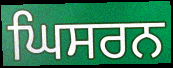
ਘਿਸਰਨ